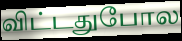
விட்டதுபோல